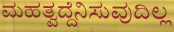
ಮಹತ್ವದ್ದೆನಿಸುವುದಿಲ್ಲ